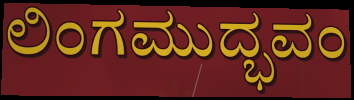
ಲಿಂಗಮುದ್ಭವಂ